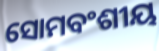
ସୋମବଂଶୀୟ